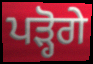
ਪੜ੍ਹੋਗੇ